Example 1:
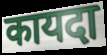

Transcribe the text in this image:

कायदा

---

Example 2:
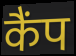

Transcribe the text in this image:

कैंप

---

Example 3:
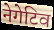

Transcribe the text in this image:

नेगेटिव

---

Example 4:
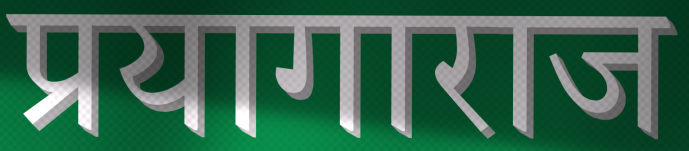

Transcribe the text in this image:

प्रयागाराज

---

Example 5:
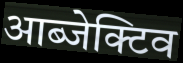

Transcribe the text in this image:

आब्जेक्टिव